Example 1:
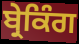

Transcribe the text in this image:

ਬ੍ਰੇਕਿੰਗ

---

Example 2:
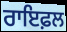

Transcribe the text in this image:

ਰਾਇਫ਼ਲ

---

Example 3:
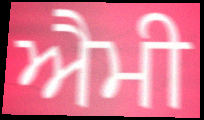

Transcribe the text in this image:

ਐਮੀ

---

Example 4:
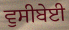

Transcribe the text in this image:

ਵੁਸੀਬੇਈ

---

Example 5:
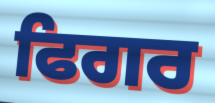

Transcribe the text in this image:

ਫਿਗਰ